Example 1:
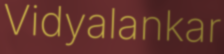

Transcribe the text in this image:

Vidyalankar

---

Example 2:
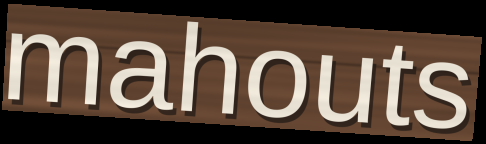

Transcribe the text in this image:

mahouts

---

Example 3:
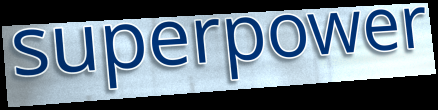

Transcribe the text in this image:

superpower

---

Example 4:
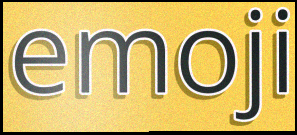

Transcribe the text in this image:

emoji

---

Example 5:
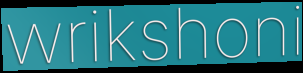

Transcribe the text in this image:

wrikshoni